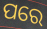
ପରେ